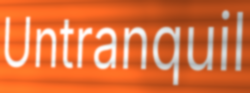
Untranquil